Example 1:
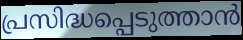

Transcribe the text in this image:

പ്രസിദ്ധപ്പെടുത്താൻ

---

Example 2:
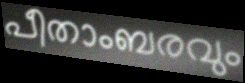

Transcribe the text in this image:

പീതാംബരവും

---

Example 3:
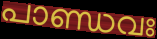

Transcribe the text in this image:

പാണ്ഡവഃ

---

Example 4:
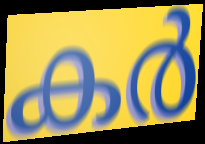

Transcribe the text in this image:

കർ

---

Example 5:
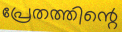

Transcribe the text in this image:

പ്രേതത്തിന്റെ